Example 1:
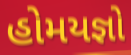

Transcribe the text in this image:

હોમયજ્ઞો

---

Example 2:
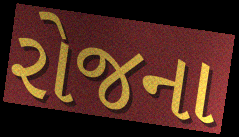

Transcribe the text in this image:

રોજના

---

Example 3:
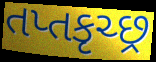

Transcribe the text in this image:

તપ્તકૃચ્છ્ર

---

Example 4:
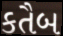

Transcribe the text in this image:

કતૈબ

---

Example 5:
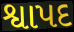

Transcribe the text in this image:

શ્વાપદ